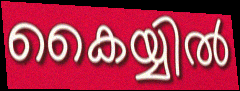
കൈയ്യിൽ